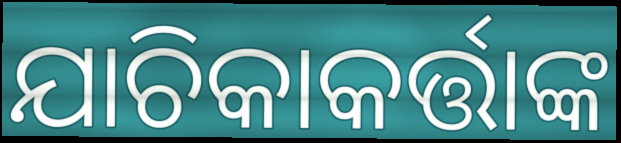
ଯାଚିକାକର୍ତ୍ତାଙ୍କ